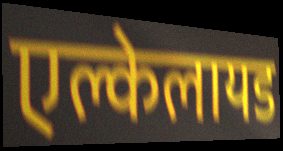
एल्केलायड